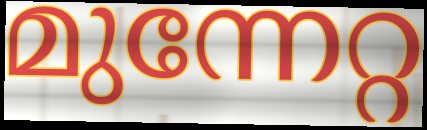
മുന്നേറ്റ